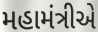
મહામંત્રીએ